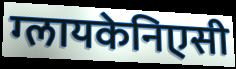
ग्लायकेनिएसी